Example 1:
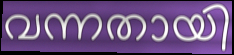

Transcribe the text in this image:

വന്നതായി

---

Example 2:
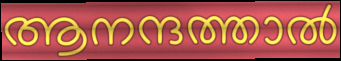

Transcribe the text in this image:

ആനന്ദത്താൽ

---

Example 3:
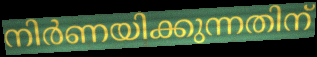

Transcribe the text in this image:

നിർണയിക്കുന്നതിന്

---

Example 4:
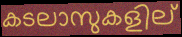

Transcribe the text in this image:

കടലാസുകളില്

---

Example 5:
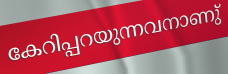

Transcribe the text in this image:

കേറിപ്പറയുന്നവനാണു്